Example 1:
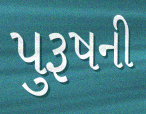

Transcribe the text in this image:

પુરૂષની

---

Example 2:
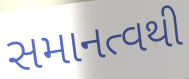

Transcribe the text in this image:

સમાનત્વથી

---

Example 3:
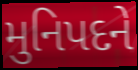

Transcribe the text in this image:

મુનિપદને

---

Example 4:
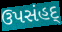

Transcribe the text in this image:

ઉપસંહદ્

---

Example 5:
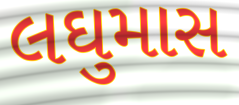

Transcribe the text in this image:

લઘુમાસ